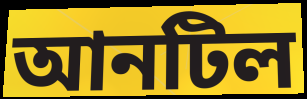
আনটিল